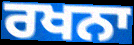
ਰਖਨਾ